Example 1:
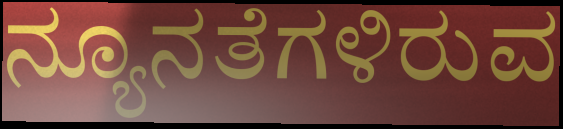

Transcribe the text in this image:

ನ್ಯೂನತೆಗಳಿರುವ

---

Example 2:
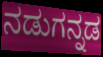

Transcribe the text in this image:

ನಡುಗನ್ನಡ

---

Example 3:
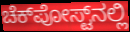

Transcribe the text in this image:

ಚೆಕ್‌ಪೋಸ್ಟ್‌ನಲ್ಲಿ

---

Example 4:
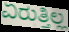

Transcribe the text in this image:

ಏರುತ್ತಿಲ್ಲ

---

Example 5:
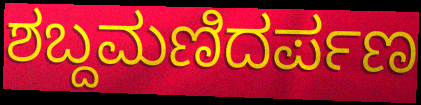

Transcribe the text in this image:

ಶಬ್ದಮಣಿದರ್ಪಣ